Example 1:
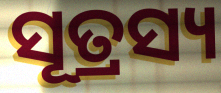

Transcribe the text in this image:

ସୂତ୍ରସ୍ୟ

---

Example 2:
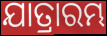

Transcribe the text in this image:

ଯାତ୍ରାରମ୍ଭ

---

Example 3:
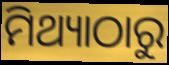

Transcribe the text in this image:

ମିଥ୍ୟାଠାରୁ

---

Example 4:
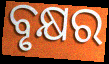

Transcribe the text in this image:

ବୃକ୍ଷର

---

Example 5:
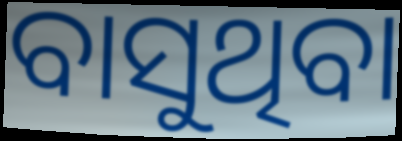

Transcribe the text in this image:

ବାସୁଥିବା